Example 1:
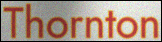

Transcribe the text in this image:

Thornton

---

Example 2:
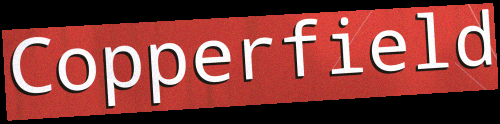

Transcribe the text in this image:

Copperfield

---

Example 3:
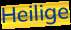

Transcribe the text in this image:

Heilige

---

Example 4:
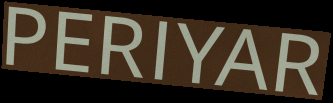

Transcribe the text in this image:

PERIYAR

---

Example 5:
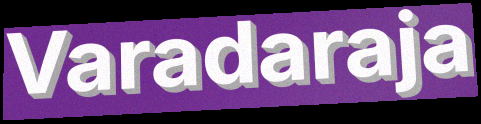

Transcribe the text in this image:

Varadaraja